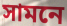
সামনে